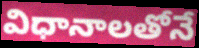
విధానాలతోనే